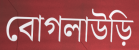
বোগলাউড়ি